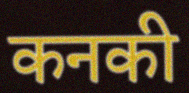
कनकी